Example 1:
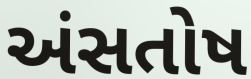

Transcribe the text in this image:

અંસતોષ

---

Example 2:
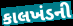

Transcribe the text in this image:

કાલખંડની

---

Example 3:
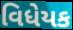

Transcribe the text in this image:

વિધેયક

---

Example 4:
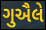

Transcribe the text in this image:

ગુઐલે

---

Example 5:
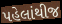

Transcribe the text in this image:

પહેલાંથીજ